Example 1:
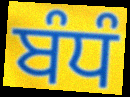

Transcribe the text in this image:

ਬੰਧੰ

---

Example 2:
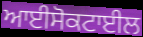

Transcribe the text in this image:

ਆਈਸੋਕਟਾਈਲ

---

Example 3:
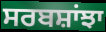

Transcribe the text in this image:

ਸਰਬਸ਼ਾਂਝਾ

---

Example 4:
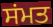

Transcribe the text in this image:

ਸਂਮਤ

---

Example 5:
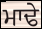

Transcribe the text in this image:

ਮਾਢੇ